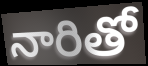
నారితో